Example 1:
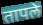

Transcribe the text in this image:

तापले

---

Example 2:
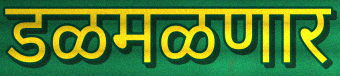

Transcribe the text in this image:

डळमळणार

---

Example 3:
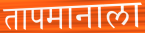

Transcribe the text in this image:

तापमानाला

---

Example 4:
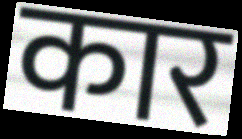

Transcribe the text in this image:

कार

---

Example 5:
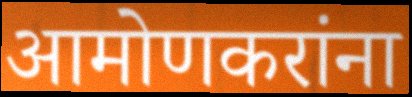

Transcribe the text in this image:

आमोणकरांना